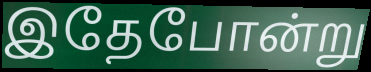
இதேபோன்று